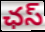
ఛస్